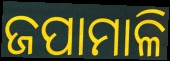
ଜପାମାଳି